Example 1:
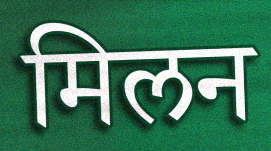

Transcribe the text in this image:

मिलन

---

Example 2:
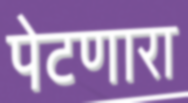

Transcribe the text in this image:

पेटणारा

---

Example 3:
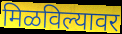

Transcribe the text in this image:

मिळविल्यावर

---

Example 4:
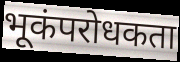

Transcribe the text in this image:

भूकंपरोधकता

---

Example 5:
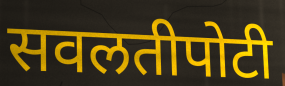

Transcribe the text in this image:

सवलतीपोटी